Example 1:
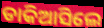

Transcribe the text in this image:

ଡାକିଆସିଲେ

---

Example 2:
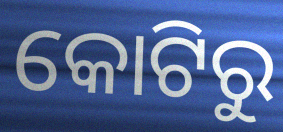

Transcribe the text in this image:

କୋଟିରୁ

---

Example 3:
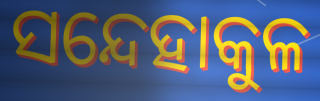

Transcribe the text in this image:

ସନ୍ଦେହାକୁଳ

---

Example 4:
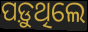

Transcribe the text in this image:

ପଡ଼ୁଥିଲେ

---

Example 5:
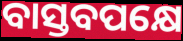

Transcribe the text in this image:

ବାସ୍ତବପକ୍ଷେ